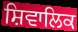
ਸ਼ਿਵਾਲਿਕ